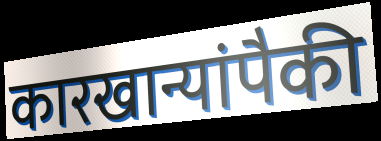
कारखान्यांपैकी